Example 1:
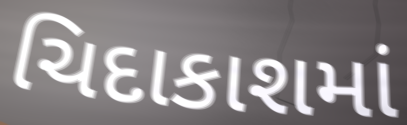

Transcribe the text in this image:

ચિદાકાશમાં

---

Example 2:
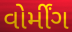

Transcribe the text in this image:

વોર્મીંગ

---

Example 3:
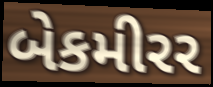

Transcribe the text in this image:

બેકમીરર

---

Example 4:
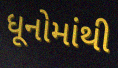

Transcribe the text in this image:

ધૂનોમાંથી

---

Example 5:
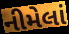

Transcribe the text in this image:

નીમેલાં